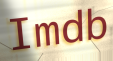
Imdb